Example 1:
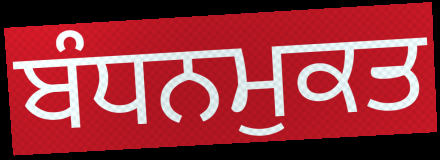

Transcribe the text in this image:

ਬੰਧਨਮੁਕਤ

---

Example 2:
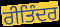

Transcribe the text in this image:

ਰੀਤਿੰਦਰ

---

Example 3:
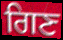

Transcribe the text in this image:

ਗਿਣ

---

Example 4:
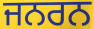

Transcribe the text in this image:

ਜਨਰਨ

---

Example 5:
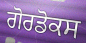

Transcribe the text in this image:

ਗੋਰਡੋਕਸ